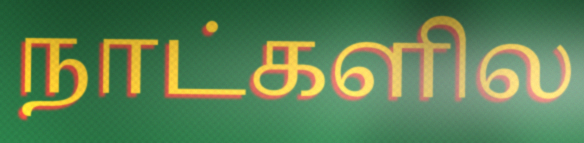
நாட்களில